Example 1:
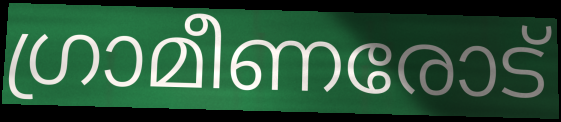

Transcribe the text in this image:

ഗ്രാമീണരോട്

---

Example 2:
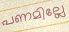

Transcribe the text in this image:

പണമില്ലേ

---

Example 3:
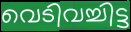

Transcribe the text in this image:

വെടിവച്ചിട്ട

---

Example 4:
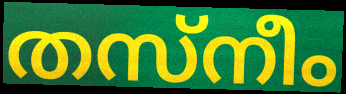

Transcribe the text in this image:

തസ്നീം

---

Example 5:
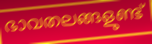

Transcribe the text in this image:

ഭാവതലങ്ങളുണ്ട്